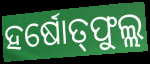
ହର୍ଷୋତ୍‌ଫୁଲ୍ଲ